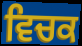
ਵਿਚਕ